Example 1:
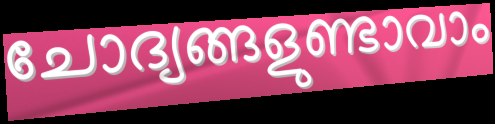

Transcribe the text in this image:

ചോദ്യങ്ങളുണ്ടാവാം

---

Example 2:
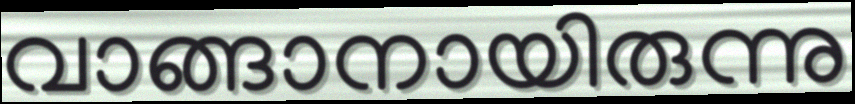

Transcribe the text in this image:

വാങ്ങാനായിരുന്നു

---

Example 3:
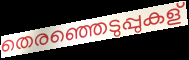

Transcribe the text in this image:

തെരഞ്ഞെടുപ്പുകള്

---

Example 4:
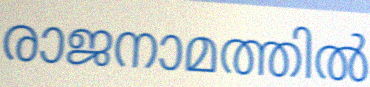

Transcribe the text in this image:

രാജനാമത്തിൽ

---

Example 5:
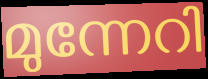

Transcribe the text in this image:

മുന്നേറി